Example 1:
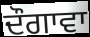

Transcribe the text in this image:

ਦੌਗਾਵਾ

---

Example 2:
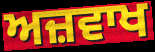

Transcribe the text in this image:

ਅਜ਼ਵਾਖ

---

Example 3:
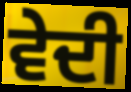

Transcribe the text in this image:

ਵੇਦੀ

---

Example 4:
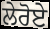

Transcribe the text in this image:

ਲੇਰੋਏ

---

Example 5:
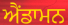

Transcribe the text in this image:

ਐਂਡਾਮਨ